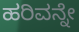
ಹರಿವನ್ನೇ